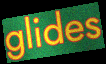
glides